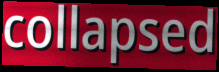
collapsed